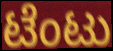
ಟೆಂಟು